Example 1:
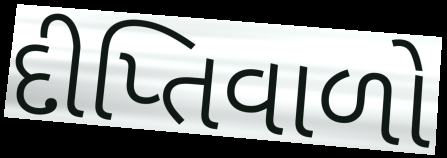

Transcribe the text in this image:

દીપ્તિવાળો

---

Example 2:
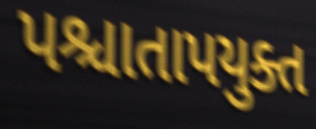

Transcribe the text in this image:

પશ્ચાતાપયુક્ત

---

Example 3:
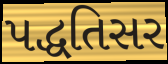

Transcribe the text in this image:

પદ્ધતિસર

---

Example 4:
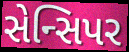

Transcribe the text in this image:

સેન્સિપર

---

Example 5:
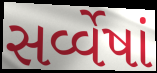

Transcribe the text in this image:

સર્વ્વેષાં